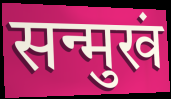
सन्मुखं